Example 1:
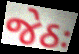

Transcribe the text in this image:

જેઠઃ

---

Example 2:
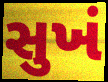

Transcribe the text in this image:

સુખં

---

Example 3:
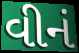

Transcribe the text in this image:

વીનં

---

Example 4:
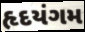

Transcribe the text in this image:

હૃદયંગમ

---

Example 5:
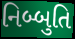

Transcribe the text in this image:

નિબ્બુતિ